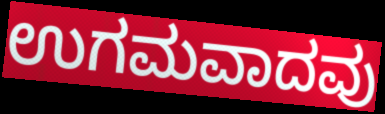
ಉಗಮವಾದವು